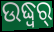
ଉଦ୍ଧ୍ୱର୍